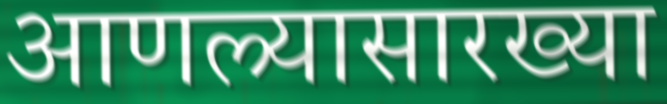
आणल्यासारख्या